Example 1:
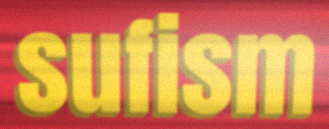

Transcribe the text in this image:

sufism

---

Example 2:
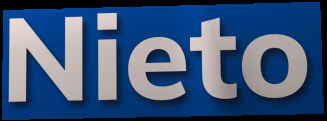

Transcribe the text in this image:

Nieto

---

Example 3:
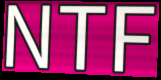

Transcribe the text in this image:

NTF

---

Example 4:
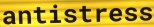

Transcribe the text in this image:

antistress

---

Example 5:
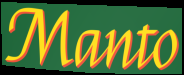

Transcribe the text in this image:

Manto